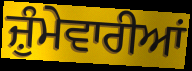
ਜ਼ੁੰਮੇਵਾਰੀਆਂ